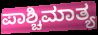
ಪಾಶ್ಚಿಮಾತ್ಯ